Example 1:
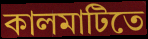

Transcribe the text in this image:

কালমাটিতে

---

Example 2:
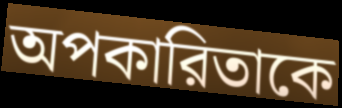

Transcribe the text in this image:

অপকারিতাকে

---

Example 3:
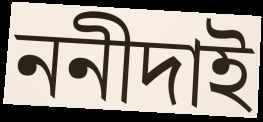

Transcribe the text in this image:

ননীদাই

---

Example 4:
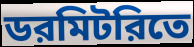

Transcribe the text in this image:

ডরমিটরিতে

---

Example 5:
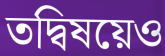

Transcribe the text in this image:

তদ্বিষয়েও